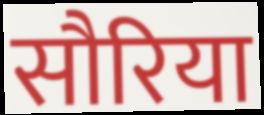
सौरिया